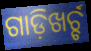
ଗାଡ଼ିଖର୍ଚ୍ଚ